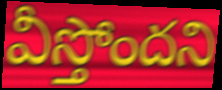
వీస్తోందని